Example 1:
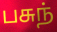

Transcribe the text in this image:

பசுந்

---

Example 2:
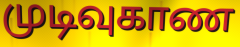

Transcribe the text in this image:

முடிவுகாண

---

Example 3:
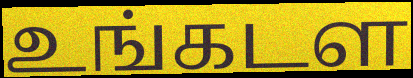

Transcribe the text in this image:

உங்கடள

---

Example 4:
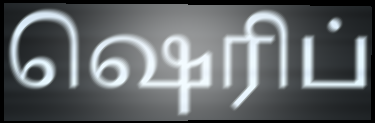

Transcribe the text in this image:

ஷெரிப்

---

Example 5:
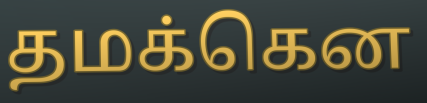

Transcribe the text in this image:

தமக்கென